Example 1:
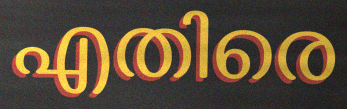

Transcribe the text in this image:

എതിരെ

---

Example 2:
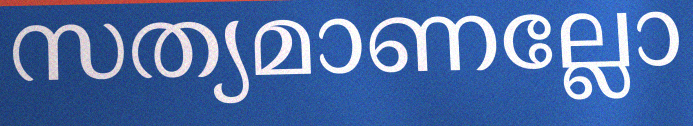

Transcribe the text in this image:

സത്യമാണല്ലോ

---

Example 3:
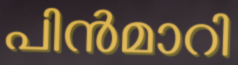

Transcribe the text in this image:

പിൻമാറി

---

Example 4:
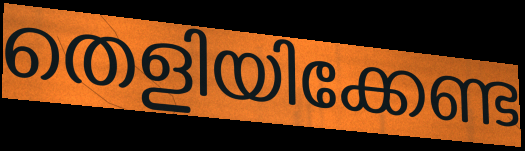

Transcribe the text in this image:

തെളിയിക്കേണ്ട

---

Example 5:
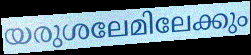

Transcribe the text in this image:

യരുശലേമിലേക്കും